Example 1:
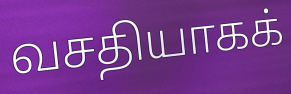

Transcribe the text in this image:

வசதியாகக்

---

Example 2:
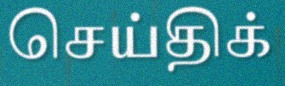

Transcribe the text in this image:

செய்திக்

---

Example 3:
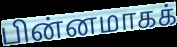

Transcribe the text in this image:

பின்னமாகக்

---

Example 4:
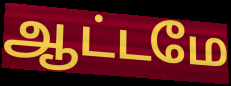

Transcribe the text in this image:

ஆட்டமே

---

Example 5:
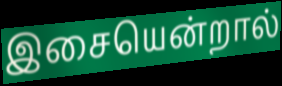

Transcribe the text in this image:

இசையென்றால்